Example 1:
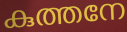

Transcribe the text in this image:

കുത്തനേ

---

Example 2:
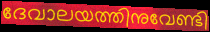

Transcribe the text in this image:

ദേവാലയത്തിനുവേണ്ടി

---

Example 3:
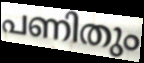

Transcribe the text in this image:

പണിതും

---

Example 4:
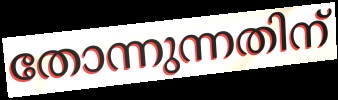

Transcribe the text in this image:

തോന്നുന്നതിന്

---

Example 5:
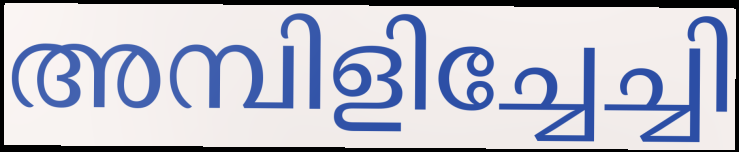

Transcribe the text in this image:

അമ്പിളിച്ചേച്ചി